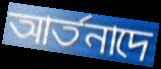
আর্তনাদে